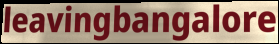
leavingbangalore